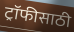
ट्रॉफीसाठी